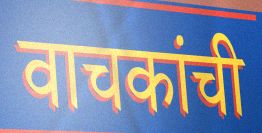
वाचकांची